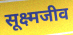
सूक्ष्मजीव